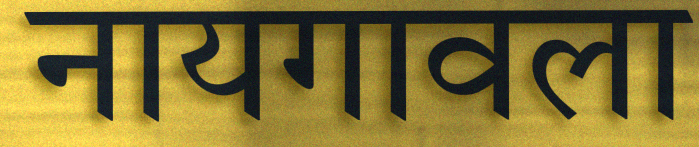
नायगावला